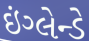
ઇંગ્લેન્ડે